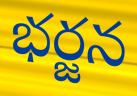
భర్జన